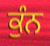
ਕੁੰਨ